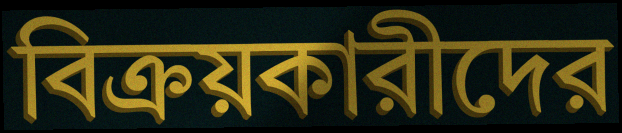
বিক্রয়কারীদের